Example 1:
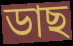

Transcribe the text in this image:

ডাছ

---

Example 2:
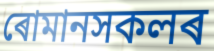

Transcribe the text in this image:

ৰোমানসকলৰ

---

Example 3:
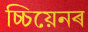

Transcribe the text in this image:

চ্চিয়েনৰ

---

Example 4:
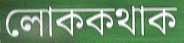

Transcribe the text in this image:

লোককথাক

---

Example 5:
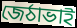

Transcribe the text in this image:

জেঠাভাই